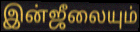
இன்ஜீலையும்